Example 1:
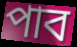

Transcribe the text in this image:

পাব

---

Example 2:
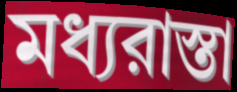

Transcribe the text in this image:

মধ্যরাস্তা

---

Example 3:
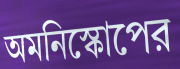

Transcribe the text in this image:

অমনিস্কোপের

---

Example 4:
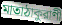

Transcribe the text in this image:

মাতাঠাকুরাণী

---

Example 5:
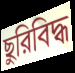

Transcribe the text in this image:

ছুরিবিদ্ধ